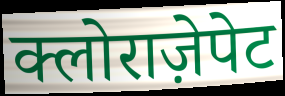
क्लोराज़ेपेट